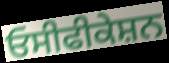
ਓਸੀਫੀਕੇਸ਼ਨ